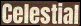
Celestial